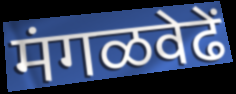
मंगळवेढें